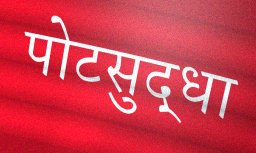
पोटसुद्धा